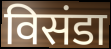
विसंडा